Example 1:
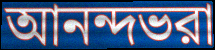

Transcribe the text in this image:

আনন্দভরা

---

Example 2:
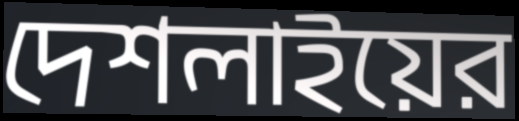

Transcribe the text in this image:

দেশলাইয়ের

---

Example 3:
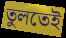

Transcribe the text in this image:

তুলতেই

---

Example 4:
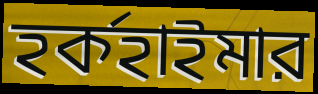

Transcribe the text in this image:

হর্কহাইমার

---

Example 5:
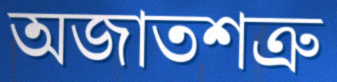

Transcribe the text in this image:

অজাতশত্রু